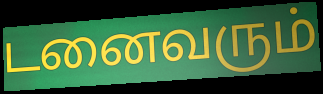
டனைவரும்